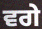
ਵਗੇ